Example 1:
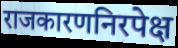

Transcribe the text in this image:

राजकारणनिरपेक्ष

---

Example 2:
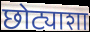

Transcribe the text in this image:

छोट्याशा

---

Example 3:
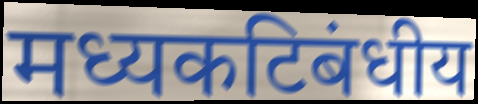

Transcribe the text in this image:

मध्यकटिबंधीय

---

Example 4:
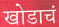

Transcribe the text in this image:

खोडाचं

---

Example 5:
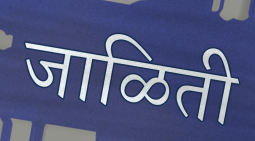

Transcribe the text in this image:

जाळिती